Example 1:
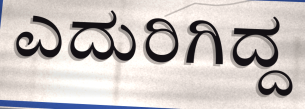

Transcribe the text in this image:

ಎದುರಿಗಿದ್ದ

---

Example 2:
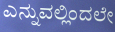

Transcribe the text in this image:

ಎನ್ನುವಲ್ಲಿಂದಲೇ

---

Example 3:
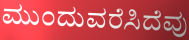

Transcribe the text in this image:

ಮುಂದುವರೆಸಿದೆವು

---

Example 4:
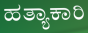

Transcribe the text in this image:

ಹತ್ಯಾಕಾರಿ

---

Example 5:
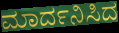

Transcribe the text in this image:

ಮಾರ್ದನಿಸಿದ